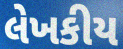
લેખકીય